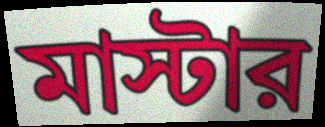
মাস্টার